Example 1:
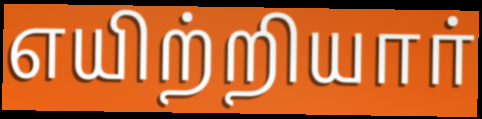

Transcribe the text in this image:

எயிற்றியார்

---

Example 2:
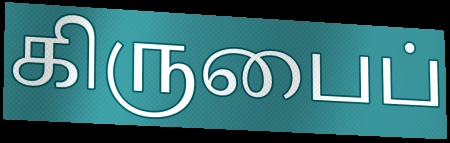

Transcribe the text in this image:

கிருபைப்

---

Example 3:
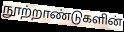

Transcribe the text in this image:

நூற்றாண்டுகளின்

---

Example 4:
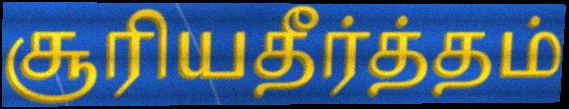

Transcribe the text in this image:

சூரியதீர்த்தம்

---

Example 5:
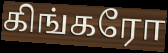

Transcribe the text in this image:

கிங்கரோ